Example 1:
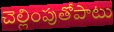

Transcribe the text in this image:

చెల్లింపుతోపాటు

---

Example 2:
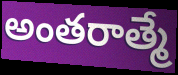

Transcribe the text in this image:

అంతరాత్మే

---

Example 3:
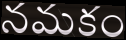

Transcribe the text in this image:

నమకం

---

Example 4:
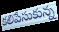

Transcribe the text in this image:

కలిపేసుకున్న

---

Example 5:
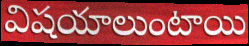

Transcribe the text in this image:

విషయాలుంటాయి